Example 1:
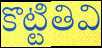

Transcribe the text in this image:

కొట్టితివి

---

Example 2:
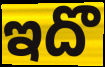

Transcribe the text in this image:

ఇదొ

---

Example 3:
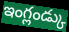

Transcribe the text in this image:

ఇంగ్లండ్కు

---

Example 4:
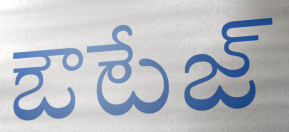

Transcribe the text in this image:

ఔటేజ్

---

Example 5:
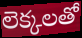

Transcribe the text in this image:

లెక్కలతో